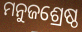
ମନୁଜଶ୍ରେଷ୍ଠ